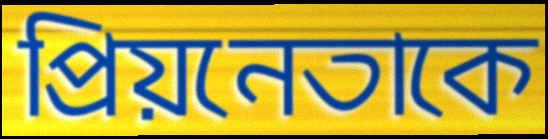
প্রিয়নেতাকে